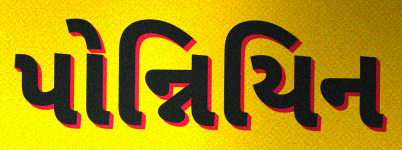
પોન્નિયિન